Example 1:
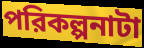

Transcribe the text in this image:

পরিকল্পনাটা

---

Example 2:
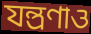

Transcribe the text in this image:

যন্ত্রণাও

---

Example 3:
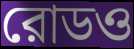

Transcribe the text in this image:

রোডও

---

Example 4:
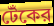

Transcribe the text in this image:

টেঁকের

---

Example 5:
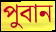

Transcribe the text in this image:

পুবান